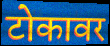
टोकावर